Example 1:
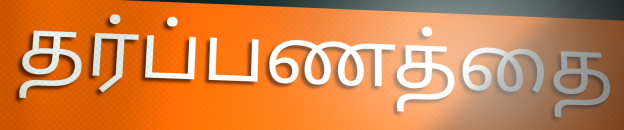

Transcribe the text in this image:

தர்ப்பணத்தை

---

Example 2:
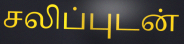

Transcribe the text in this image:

சலிப்புடன்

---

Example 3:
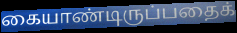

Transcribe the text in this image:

கையாண்டிருப்பதைக்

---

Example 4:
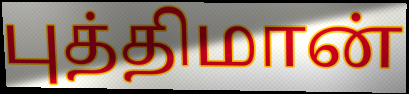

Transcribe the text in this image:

புத்திமான்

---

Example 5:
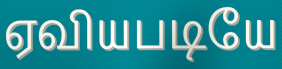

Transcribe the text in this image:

ஏவியபடியே